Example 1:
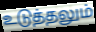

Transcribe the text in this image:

உடுத்தலும்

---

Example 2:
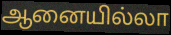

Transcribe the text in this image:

ஆனையில்லா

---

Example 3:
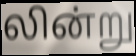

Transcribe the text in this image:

லின்று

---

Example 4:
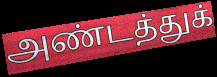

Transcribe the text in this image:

அண்டத்துக்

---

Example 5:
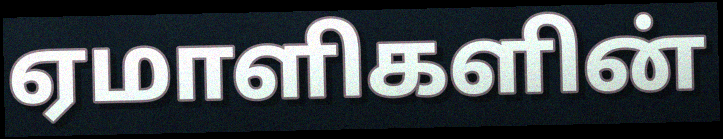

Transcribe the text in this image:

ஏமாளிகளின்